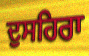
ਦੁਸਹਿਰਾ